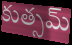
కుత్సమ్